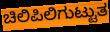
ಚಿಲಿಪಿಲಿಗುಟ್ಟುತ